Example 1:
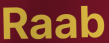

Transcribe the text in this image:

Raab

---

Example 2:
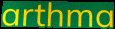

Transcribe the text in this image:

arthma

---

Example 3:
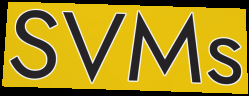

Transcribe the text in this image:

SVMs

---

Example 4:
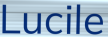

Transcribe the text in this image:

Lucile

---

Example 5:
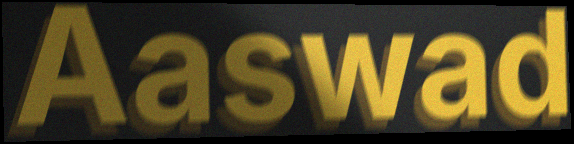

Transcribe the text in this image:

Aaswad